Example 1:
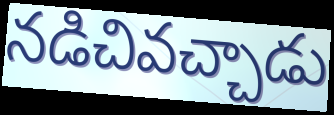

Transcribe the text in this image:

నడిచివచ్చాడు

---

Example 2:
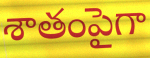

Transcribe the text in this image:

శాతంపైగా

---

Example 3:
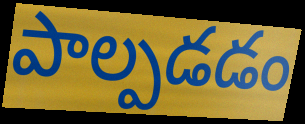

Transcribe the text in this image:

పాల్పడడం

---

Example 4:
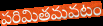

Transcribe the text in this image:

పరిమితమవటం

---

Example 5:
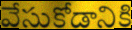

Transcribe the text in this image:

వేసుకోడానికి